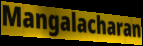
Mangalacharan